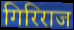
गिरिराज